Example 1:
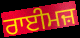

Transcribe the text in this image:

ਰਾਈਮਜ਼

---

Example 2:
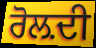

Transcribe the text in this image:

ਰੋਲ਼ਦੀ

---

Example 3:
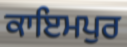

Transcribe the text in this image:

ਕਾਇਮਪੁਰ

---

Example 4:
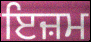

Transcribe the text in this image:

ਇਜ਼ਮ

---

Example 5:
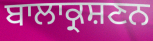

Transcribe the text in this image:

ਬਾਲਾਕ੍ਰਸ਼ਣਨ